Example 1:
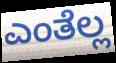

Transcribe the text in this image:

ಎಂತೆಲ್ಲ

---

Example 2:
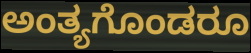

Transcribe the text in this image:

ಅಂತ್ಯಗೊಂಡರೂ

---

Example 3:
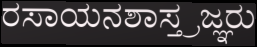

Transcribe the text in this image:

ರಸಾಯನಶಾಸ್ತ್ರಜ್ಞರು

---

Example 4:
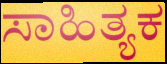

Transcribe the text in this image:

ಸಾಹಿತ್ಯಕ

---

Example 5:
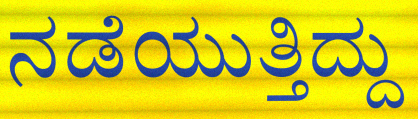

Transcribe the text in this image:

ನಡೆಯುತ್ತಿದ್ದು